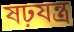
ষঢ়যন্ত্র